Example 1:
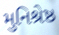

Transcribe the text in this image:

મુનિશ્રેષ્ઠ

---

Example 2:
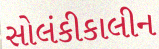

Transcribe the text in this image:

સોલંકીકાલીન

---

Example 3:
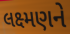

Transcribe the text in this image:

લક્ષ્મણને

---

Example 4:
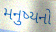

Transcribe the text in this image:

મનુષ્યનો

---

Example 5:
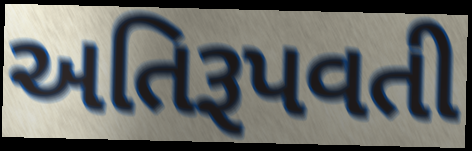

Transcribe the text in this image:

અતિરૂપવતી